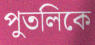
পুতলিকে